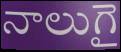
నాలుగై